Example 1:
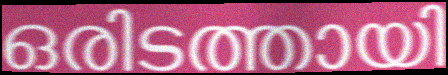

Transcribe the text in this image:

ഒരിടത്തായി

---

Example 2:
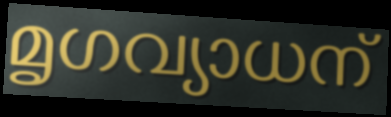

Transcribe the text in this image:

മൃഗവ്യാധന്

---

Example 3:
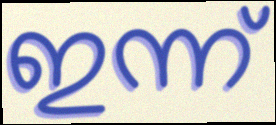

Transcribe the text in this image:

ഇന്ന്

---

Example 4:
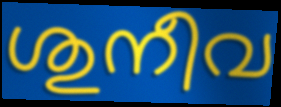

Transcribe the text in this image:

ശുനീവ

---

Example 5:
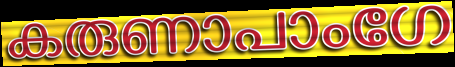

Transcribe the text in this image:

കരുണാപാംഗേ